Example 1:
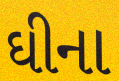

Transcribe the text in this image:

ઘીના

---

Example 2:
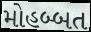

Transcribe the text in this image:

મોહબ્બત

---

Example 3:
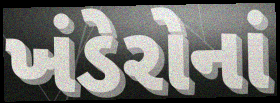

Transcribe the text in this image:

ખંડેરોનાં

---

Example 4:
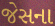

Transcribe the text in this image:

જેસના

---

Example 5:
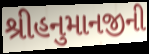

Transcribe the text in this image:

શ્રીહનુમાનજીની